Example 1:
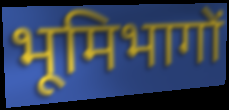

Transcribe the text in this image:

भूमिभागों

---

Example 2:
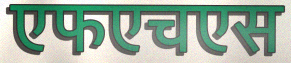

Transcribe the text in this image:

एफएचएस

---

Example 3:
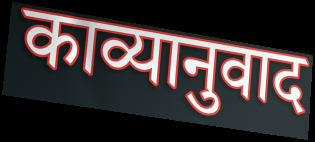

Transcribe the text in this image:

काव्यानुवाद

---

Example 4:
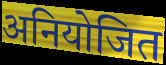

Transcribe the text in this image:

अनियोजित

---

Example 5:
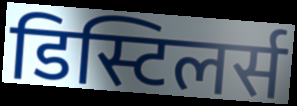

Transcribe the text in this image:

डिस्टिलर्स